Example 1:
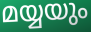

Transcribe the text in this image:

മയ്യയും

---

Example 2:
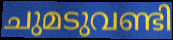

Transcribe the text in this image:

ചുമടുവണ്ടി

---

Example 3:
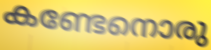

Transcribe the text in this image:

കണ്ടേനൊരു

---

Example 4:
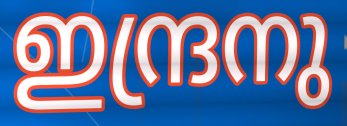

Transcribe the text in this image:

ഇന്ദ്രനു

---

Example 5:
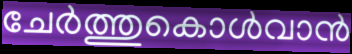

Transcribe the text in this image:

ചേർത്തുകൊൾവാൻ